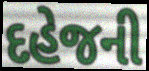
દહેજની